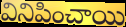
వినిపించాయి